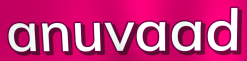
anuvaad